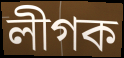
লীগক